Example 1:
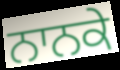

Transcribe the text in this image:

ਨਾਨਕੇ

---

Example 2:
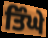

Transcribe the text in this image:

ਤਿੰਘੇ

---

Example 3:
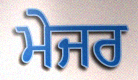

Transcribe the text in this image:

ਮੇਜਰ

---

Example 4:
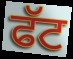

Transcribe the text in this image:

ਫੱਟ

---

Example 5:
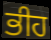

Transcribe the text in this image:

ਭੀਹ